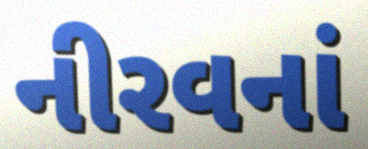
નીરવનાં